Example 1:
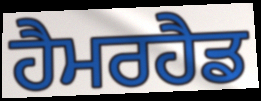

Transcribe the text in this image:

ਹੈਮਰਹੈਡ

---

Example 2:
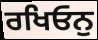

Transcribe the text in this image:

ਰਖਿਓਨੁ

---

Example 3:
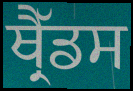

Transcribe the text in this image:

ਥ੍ਰੈੱਡਸ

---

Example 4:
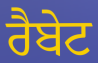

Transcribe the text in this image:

ਰੈਬੇਟ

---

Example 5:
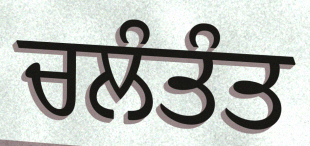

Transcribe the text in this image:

ਚਲੰਤੰਤ